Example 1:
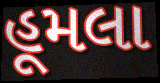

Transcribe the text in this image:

હૂમલા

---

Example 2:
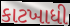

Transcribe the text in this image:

કાટખાધી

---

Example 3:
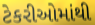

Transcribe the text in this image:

ટેકરીઓમાંથી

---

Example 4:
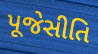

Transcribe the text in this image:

પૂજેસીતિ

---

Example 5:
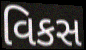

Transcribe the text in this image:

વિકસ